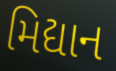
મિદ્યાન